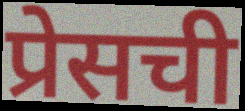
प्रेसची